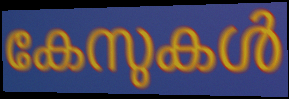
കേസുകൾ